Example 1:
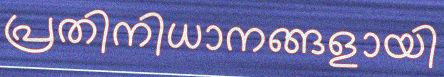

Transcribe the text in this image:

പ്രതിനിധാനങ്ങളായി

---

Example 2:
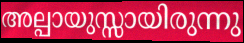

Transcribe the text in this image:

അല്പായുസ്സായിരുന്നു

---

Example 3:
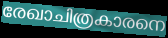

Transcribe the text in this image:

രേഖാചിത്രകാരനെ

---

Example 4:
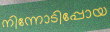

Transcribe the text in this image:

നിന്നോടിപ്പോയ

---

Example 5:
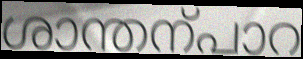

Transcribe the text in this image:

ശാന്തന്പാറ